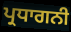
ਪ੍ਰਧਾਗਨੀ